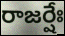
రాజర్షేః